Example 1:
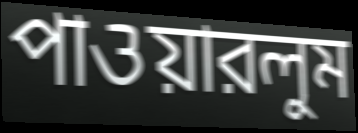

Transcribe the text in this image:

পাওয়ারলুম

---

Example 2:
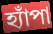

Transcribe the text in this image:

হ্যাঁপা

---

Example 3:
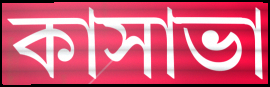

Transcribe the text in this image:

কাসাভা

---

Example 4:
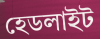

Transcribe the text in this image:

হেডলাইট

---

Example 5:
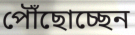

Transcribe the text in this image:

পৌঁছোচ্ছেন